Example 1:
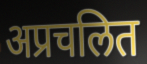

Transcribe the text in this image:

अप्रचलित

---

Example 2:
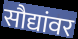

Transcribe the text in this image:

सौद्यांवर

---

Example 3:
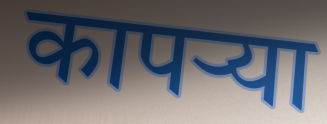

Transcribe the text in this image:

कापर्‍या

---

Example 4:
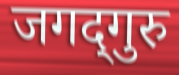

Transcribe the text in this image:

जगद्‍गुरु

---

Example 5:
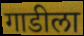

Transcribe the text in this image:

गाडीला